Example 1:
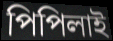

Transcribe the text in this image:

পিপিলাই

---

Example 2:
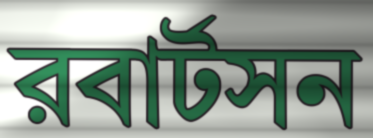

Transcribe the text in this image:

রবার্টসন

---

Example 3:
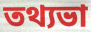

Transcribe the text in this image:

তথ্যভা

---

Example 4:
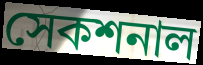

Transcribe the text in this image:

সেকশনাল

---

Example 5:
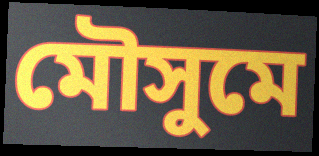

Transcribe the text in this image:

মৌসুমে